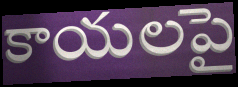
కాయలపై